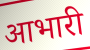
आभारी